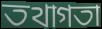
তথাগতা